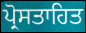
ਪ੍ਰੋਸਤਾਹਿਤ